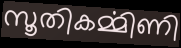
സൂതികൎമ്മിണി